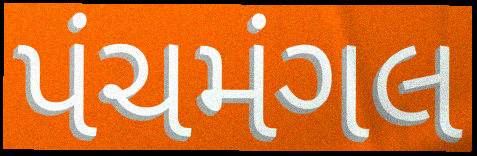
પંચમંગલ